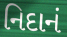
નિદાનં